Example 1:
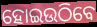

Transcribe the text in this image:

ହୋଇଉଠିବେ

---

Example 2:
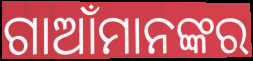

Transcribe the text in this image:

ଗାଆଁମାନଙ୍କର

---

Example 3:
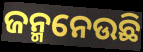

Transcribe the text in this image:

ଜନ୍ମନେଉଛି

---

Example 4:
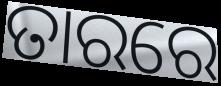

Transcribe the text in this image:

ତାରରେ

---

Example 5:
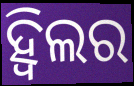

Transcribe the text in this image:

ହ୍ୱିଲର